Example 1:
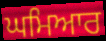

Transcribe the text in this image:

ਘਮਿਆਰ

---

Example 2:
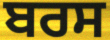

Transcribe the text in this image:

ਬਰਸ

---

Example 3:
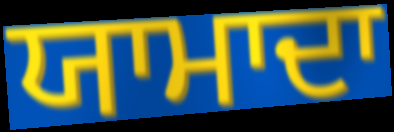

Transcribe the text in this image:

ਯਾਮਾਦਾ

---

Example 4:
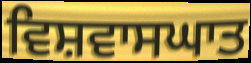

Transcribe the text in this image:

ਵਿਸ਼ਵਾਸਘਾਤ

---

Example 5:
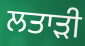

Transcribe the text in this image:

ਲਤਾੜੀ